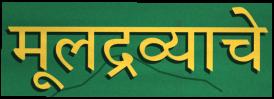
मूलद्रव्याचे